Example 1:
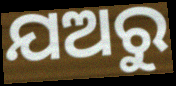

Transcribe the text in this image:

ଯଅରୁ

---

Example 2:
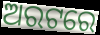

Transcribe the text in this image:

ଅରଟରେ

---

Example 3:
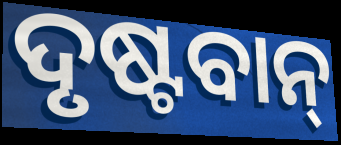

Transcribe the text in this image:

ଦୃଷ୍ଟବାନ୍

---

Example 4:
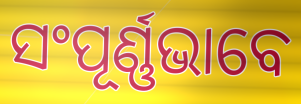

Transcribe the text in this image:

ସଂପୂର୍ଣ୍ଣଭାବେ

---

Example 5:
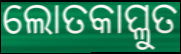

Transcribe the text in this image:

ଲୋତକାପ୍ଳୁତ